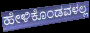
ಹೇಳಿಕೊಂಡವಳಲ್ಲ